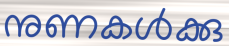
നുണകൾക്കു